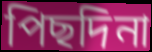
পিছদিনা